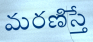
మరణిస్తే